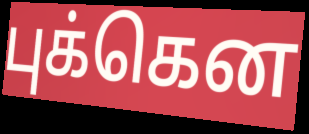
புக்கென